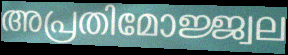
അപ്രതിമോജ്ജ്വല